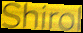
Shirol